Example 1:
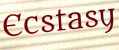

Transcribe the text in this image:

Ecstasy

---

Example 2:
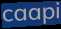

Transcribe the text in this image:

caapi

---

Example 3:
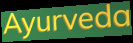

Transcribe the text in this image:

Ayurveda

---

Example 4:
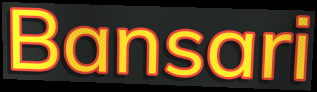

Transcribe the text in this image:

Bansari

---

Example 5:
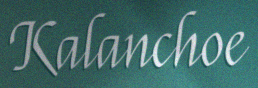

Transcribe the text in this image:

Kalanchoe